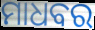
ମାଧବର